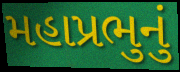
મહાપ્રભુનું